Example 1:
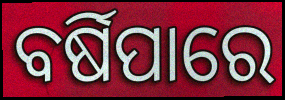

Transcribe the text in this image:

ବର୍ଷିପାରେ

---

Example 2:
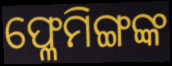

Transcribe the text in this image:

ଫ୍ଳେମିଙ୍ଗଙ୍କ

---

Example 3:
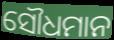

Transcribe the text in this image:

ସୌଧମାନ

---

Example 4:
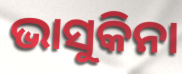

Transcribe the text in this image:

ଭାସୁକିନା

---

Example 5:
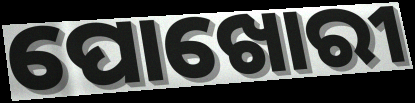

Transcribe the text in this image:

ପୋଖୋରୀ